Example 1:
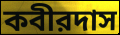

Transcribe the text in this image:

কবীরদাস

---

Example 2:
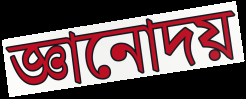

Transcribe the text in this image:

জ্ঞানোদয়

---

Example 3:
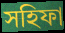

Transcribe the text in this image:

সহিফা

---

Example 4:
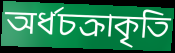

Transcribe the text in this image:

অর্ধচক্রাকৃতি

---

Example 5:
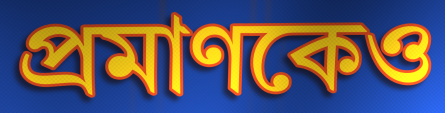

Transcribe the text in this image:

প্রমাণকেও